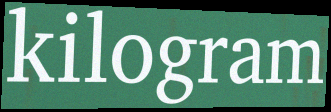
kilogram